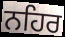
ਨਹਿਰ